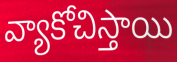
వ్యాకోచిస్తాయి